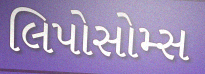
લિપોસોમ્સ